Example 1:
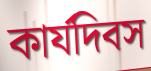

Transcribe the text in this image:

কার্যদিবস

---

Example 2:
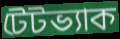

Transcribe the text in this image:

টেটভ্যাক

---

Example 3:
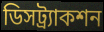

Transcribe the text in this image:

ডিসট্র্যাকশন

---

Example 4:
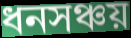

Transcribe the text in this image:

ধনসঞ্চয়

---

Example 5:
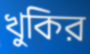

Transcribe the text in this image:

খুকির